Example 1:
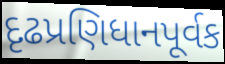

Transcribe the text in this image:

દૃઢપ્રણિધાનપૂર્વક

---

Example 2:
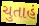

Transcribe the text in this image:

ચુતાહં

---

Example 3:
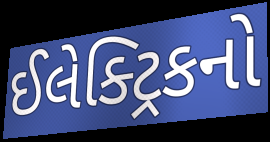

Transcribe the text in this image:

ઈલેક્ટ્રિકનો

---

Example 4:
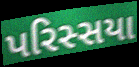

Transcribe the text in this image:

પરિસ્સયા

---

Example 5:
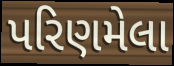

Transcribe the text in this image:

પરિણમેલા